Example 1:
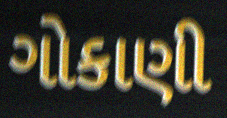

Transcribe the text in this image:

ગોકાણી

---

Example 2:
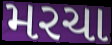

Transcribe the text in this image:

મરચા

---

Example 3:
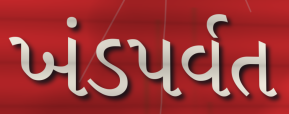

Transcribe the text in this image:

ખંડપર્વત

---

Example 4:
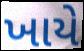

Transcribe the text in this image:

ખાયે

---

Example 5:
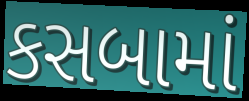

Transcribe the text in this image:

કસબામાં